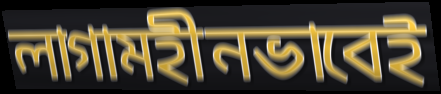
লাগামহীনভাবেই